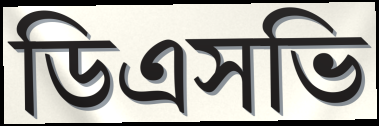
ডিএসভি